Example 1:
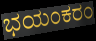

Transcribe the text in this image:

ಭಯಂಕರಂ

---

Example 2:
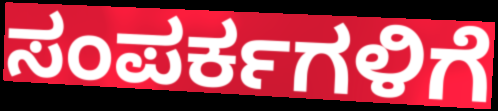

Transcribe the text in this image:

ಸಂಪರ್ಕಗಳಿಗೆ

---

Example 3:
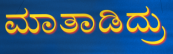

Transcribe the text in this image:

ಮಾತಾಡಿದ್ರು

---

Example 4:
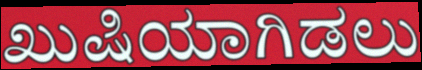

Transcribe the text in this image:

ಖುಷಿಯಾಗಿಡಲು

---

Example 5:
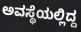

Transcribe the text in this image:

ಅವಸ್ಥೆಯಲ್ಲಿದ್ದ